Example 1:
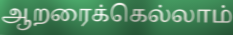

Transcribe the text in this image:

ஆறரைக்கெல்லாம்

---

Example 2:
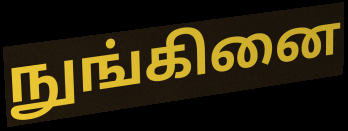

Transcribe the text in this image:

நுங்கினை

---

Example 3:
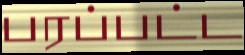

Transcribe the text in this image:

பரப்பட்ட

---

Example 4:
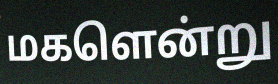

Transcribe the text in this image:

மகளென்று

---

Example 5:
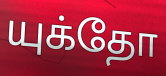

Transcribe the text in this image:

யுக்தோ